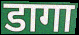
डागा